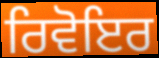
ਰਿਵੋਇਰ